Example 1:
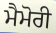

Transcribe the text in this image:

ਮੈਮੋਰੀ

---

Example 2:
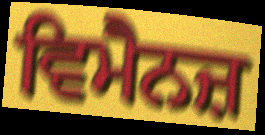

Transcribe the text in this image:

ਵਿਮੈਨਜ਼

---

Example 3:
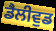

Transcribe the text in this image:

ਡੈਲੀਵੁਡ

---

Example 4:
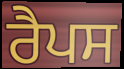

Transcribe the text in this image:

ਰੈਪਸ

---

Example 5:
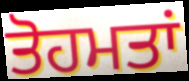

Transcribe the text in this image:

ਤੋਹਮਤਾਂ